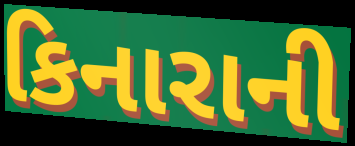
કિનારાની